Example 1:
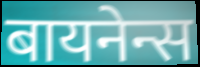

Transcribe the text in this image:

बायनेन्स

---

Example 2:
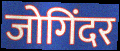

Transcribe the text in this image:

जोगिंदर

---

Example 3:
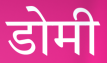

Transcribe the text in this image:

डोमी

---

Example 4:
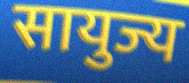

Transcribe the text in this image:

सायुज्य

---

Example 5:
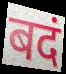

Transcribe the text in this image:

बदं